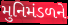
મુનિમંડળને